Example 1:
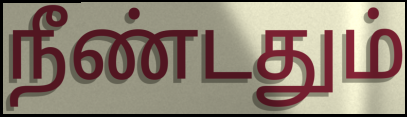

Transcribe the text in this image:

நீண்டதும்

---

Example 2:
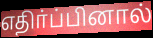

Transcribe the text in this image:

எதிர்ப்பினால்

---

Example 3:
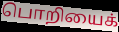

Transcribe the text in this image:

பொறியைக்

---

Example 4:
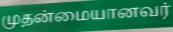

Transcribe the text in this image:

முதன்மையானவர்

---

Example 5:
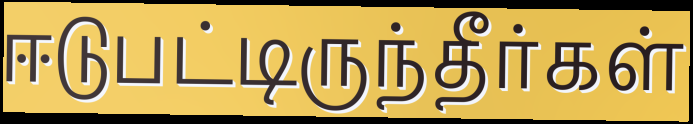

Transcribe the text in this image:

ஈடுபட்டிருந்தீர்கள்